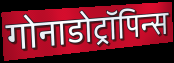
गोनाडोट्रॉपिन्स